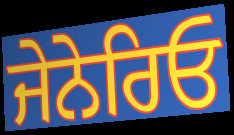
ਜੇਨੇਰਿਓ